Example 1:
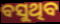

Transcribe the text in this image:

ବସୁଥିବ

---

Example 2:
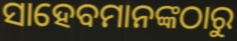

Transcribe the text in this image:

ସାହେବମାନଙ୍କଠାରୁ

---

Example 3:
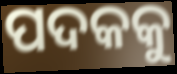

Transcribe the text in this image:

ପଦକକୁ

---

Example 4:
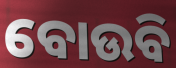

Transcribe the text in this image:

ବୋଉବି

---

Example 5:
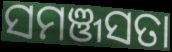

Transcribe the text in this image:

ସମଞ୍ଜସତା